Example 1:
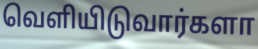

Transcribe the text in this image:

வெளியிடுவார்களா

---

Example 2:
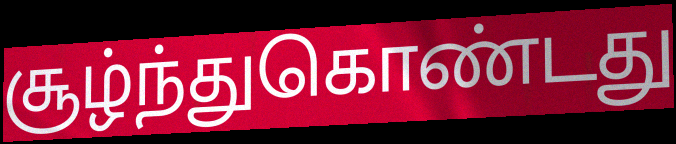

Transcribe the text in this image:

சூழ்ந்துகொண்டது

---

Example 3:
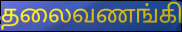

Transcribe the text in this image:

தலைவணங்கி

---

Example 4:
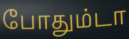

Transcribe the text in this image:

போதும்டா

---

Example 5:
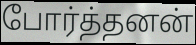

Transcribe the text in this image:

போர்த்தனன்